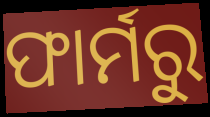
ଫାର୍ମରୁ